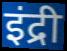
इंद्री